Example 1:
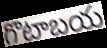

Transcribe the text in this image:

గొటాబయ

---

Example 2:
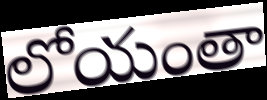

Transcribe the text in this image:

లోయంతా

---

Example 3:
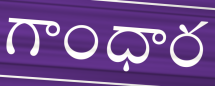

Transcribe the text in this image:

గాంధార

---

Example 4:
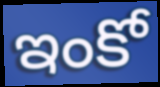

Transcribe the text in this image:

ఇంకో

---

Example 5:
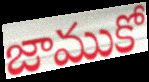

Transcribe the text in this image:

జాముకో